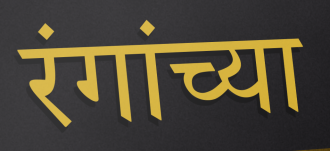
रंगांच्या